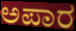
ಅಪಾರ